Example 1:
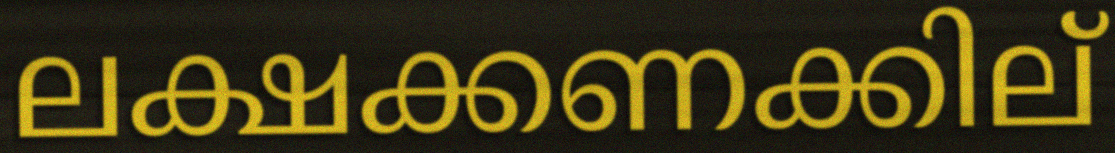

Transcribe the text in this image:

ലക്ഷക്കണക്കില്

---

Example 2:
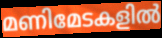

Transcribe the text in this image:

മണിമേടകളിൽ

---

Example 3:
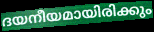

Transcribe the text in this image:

ദയനീയമായിരിക്കും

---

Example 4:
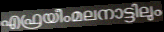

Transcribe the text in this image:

എഫ്രയീംമലനാട്ടിലും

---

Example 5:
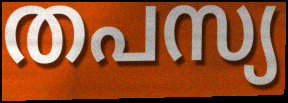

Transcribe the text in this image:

തപസ്യ